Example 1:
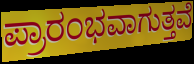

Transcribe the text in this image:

ಪ್ರಾರಂಭವಾಗುತ್ತವೆ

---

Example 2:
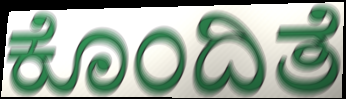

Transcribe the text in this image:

ಕೊಂದಿತೆ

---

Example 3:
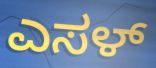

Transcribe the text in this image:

ಎಸಳ್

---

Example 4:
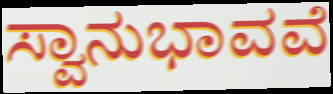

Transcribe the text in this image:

ಸ್ವಾನುಭಾವವೆ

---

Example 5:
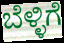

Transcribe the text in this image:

ಬೆಳ್ಳಿಗೆ